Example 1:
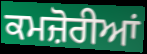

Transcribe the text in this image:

ਕਮਜ਼ੋਰੀਆਂ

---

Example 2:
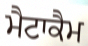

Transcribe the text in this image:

ਮੈਟਾਕੈਮ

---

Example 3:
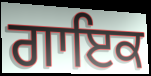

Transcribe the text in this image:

ਗਾਇਕ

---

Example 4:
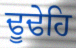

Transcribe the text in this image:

ਢੂਢੇਹਿ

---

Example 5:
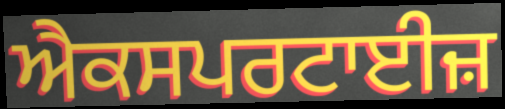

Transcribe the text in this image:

ਐਕਸਪਰਟਾਈਜ਼